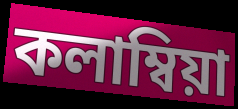
কলাম্বিয়া